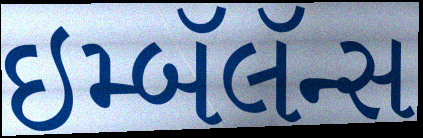
ઇમ્બૅલૅન્સ